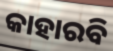
କାହାରବି